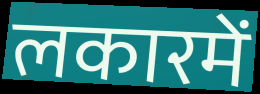
लकारमें